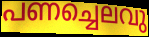
പണച്ചെലവു